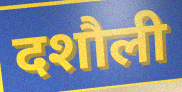
दशौली